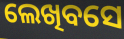
ଲେଖିବସେ